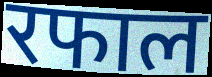
रफाल